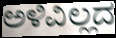
ಅಳಿವಿಲ್ಲದ